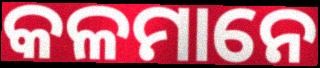
କଳମାନେ